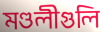
মণ্ডলীগুলি